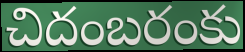
చిదంబరంకు